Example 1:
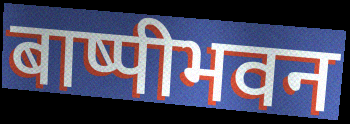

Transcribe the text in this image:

बाष्पीभवन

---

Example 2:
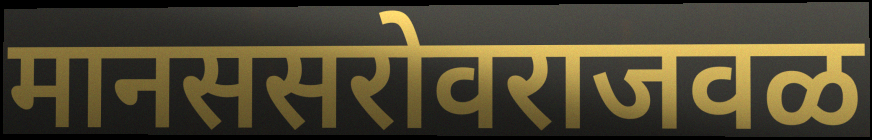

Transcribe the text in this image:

मानससरोवराजवळ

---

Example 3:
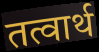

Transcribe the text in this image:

तत्वार्थ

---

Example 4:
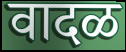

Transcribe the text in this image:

वादळ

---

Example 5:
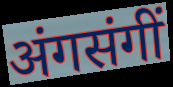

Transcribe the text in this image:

अंगसंगीं